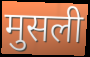
मुसली